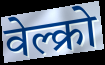
वेल्क्रो